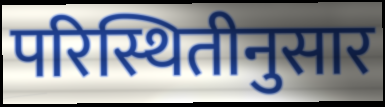
परिस्थितीनुसार